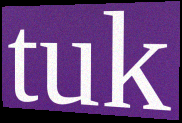
tuk